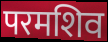
परमशिव